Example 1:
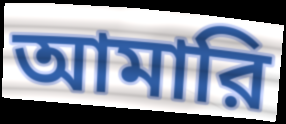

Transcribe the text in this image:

আমারি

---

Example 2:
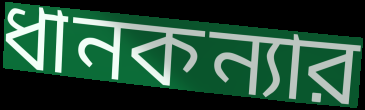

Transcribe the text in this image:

ধানকন্যার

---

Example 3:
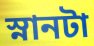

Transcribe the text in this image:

স্নানটা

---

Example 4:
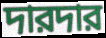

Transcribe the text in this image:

দারদার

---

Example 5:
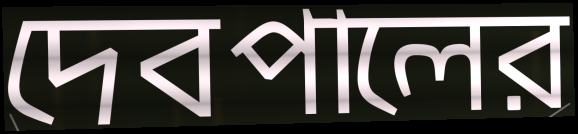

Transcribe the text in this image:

দেবপালের